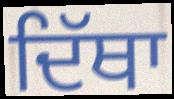
ਦਿੱਥਾ